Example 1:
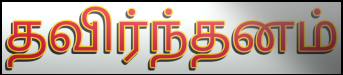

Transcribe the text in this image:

தவிர்ந்தனம்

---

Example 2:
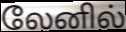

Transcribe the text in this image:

லேனில்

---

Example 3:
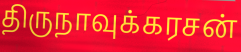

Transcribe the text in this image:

திருநாவுக்கரசன்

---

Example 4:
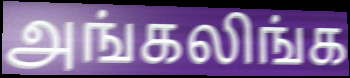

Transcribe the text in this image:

அங்கலிங்க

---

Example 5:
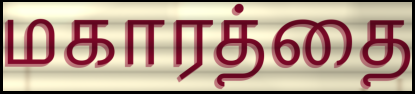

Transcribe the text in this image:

மகாரத்தை